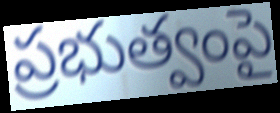
ప్రభుత్వంపై